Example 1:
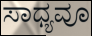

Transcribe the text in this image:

ಸಾಧ್ಯವೂ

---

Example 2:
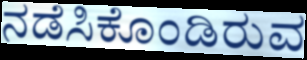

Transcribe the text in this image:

ನಡೆಸಿಕೊಂಡಿರುವ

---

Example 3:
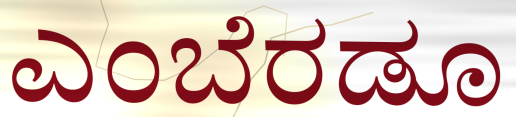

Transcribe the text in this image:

ಎಂಬೆರಡೂ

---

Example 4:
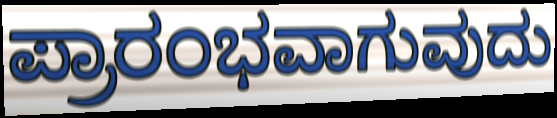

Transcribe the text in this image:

ಪ್ರಾರಂಭವಾಗುವುದು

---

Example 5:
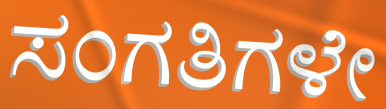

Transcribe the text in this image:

ಸಂಗತಿಗಳೇ